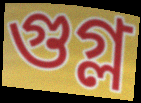
গুগ্ল